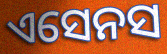
ଏସେନସ